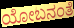
ಯೋಬನಂತೆ